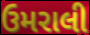
ઉમરાલી